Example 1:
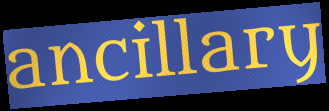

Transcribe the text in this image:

ancillary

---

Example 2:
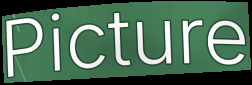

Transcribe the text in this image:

Picture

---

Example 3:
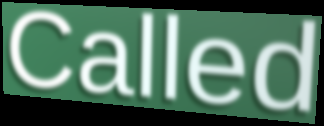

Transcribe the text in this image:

Called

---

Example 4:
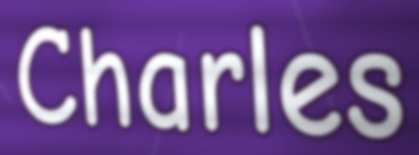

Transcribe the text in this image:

Charles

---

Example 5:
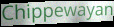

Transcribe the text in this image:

Chippewayan